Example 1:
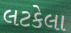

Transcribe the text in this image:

લટકેલા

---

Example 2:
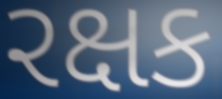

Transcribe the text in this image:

રક્ષક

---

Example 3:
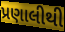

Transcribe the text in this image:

પ્રણાલીથી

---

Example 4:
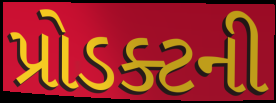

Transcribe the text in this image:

પ્રોડક્ટની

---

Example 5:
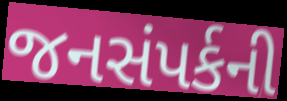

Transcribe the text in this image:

જનસંપર્કની